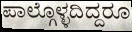
ಪಾಲ್ಗೊಳ್ಳದಿದ್ದರೂ